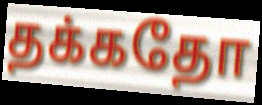
தக்கதோ